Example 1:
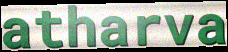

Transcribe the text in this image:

atharva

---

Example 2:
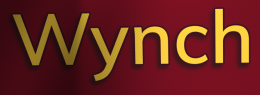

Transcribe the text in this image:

Wynch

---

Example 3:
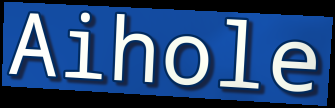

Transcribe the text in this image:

Aihole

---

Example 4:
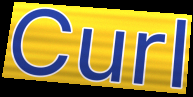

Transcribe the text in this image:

Curl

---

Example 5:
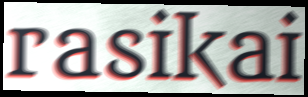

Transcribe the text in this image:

rasikai